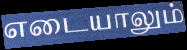
எடையாலும்